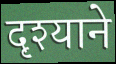
दृश्याने